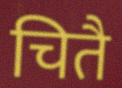
चितै